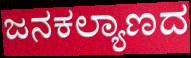
ಜನಕಲ್ಯಾಣದ